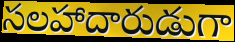
సలహాదారుడుగా